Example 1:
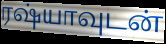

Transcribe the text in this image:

ரஷ்யாவுடன்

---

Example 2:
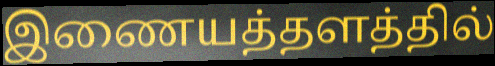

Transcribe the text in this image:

இணையத்தளத்தில்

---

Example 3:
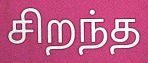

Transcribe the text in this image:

சிறந்த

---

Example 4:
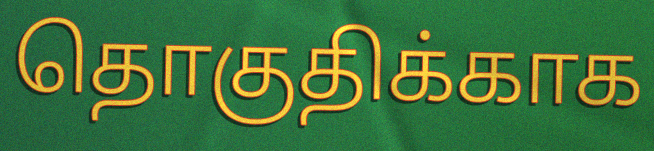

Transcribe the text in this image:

தொகுதிக்காக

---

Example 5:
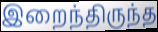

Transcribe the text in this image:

இறைந்திருந்த